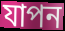
যাপন